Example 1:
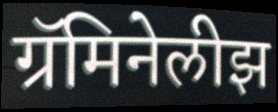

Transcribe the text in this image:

ग्रॅमिनेलीझ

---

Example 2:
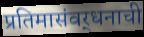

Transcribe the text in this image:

प्रतिमासंवर्धनाची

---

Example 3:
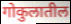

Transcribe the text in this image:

गोकुलातील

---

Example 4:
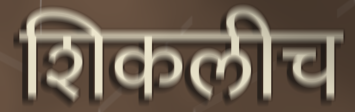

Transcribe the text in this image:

शिकलीच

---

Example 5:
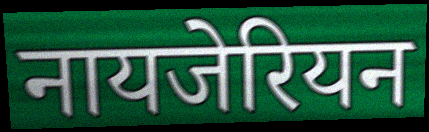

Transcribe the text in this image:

नायजेरियन